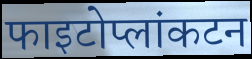
फाइटोप्लांकटन